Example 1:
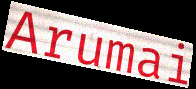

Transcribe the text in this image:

Arumai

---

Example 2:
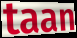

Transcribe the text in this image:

taan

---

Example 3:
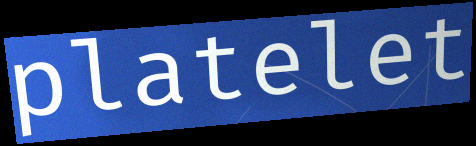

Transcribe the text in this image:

platelet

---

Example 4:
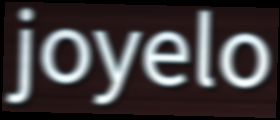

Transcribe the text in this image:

joyelo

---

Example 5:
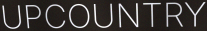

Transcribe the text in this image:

UPCOUNTRY